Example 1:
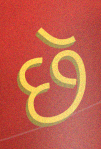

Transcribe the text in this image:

છૅ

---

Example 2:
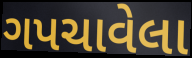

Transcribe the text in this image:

ગપચાવેલા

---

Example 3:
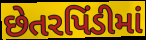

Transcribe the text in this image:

છેતરપિંડીમાં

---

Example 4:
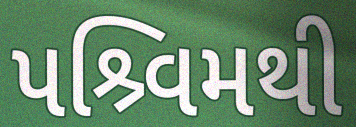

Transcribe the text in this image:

પશ્ર્વિમથી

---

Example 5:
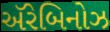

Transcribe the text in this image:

ઍરેબિનોઝ